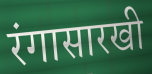
रंगासारखी